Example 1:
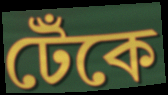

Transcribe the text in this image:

টেঁকে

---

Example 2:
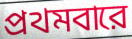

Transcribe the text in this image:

প্রথমবারে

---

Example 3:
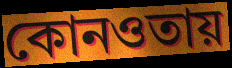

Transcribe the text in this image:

কোনওতায়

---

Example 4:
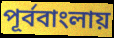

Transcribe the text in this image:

পূর্ববাংলায়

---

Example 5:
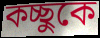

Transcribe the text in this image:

কচ্ছুকে